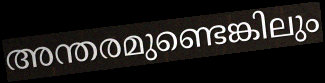
അന്തരമുണ്ടെങ്കിലും